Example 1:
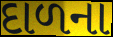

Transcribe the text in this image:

દાળના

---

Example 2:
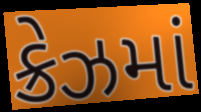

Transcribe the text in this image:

ક્રેઝમાં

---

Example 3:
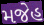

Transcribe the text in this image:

મજેહ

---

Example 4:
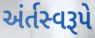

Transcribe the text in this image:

અંર્તસ્વરૂપે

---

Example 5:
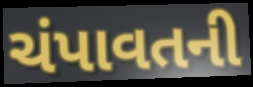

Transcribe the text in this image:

ચંપાવતની